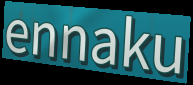
ennaku